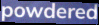
powdered